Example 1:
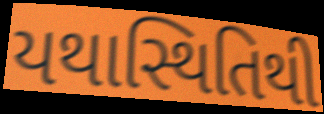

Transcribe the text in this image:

યથાસ્થિતિથી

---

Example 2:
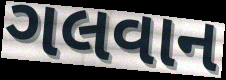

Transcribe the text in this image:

ગલવાન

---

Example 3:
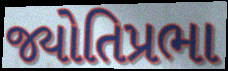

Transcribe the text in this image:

જ્યોતિપ્રભા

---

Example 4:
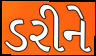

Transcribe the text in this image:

ડરીને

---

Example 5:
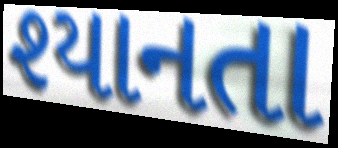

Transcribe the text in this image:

શ્યાનતા